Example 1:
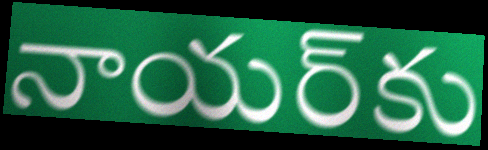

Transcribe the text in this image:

నాయర్‌కు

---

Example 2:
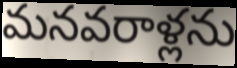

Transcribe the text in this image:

మనవరాళ్లను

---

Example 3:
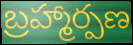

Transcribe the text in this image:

బ్రహ్మార్పణ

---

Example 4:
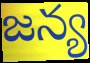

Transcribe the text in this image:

జన్య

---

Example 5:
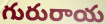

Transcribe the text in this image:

గురురాయ